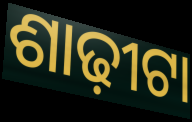
ଶାଢ଼ୀଟା